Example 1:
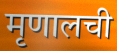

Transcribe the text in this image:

मृणालची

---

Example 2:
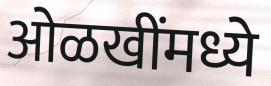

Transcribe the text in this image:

ओळखींमध्ये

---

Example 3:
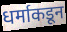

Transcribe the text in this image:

धर्माकडून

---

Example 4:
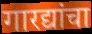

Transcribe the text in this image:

गारद्यांचा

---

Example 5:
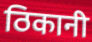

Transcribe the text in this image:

ठिकानी